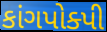
કાંગપોક્પી